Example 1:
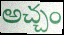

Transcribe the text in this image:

అచ్చం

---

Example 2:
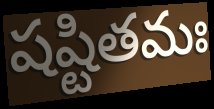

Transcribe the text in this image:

షష్టితమః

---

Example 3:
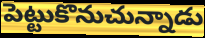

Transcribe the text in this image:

పెట్టుకొనుచున్నాడు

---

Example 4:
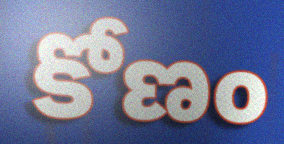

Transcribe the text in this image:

కోణం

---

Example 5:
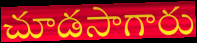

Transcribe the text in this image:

చూడసాగారు